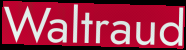
Waltraud